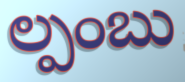
ల్పంబు